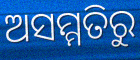
ଅସମ୍ମତିରୁ